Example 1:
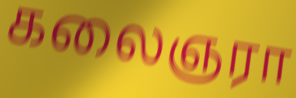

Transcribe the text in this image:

கலைஞரா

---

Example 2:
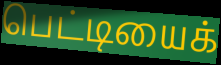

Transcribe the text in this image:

பெட்டியைக்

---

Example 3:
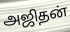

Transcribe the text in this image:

அஜிதன்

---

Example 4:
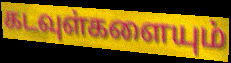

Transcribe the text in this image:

கடவுள்களையும்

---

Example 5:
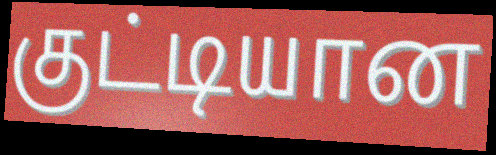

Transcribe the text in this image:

குட்டியான